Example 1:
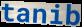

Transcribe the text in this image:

tanib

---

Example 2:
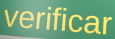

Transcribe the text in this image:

verificar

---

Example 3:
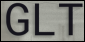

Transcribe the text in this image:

GLT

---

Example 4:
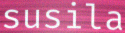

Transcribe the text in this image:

susila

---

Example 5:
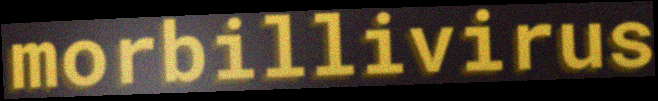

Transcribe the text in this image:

morbillivirus